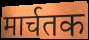
मार्चतक